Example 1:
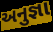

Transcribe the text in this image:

અનુજ્ઞા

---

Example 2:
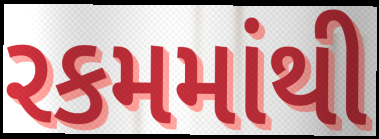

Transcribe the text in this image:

રકમમાંથી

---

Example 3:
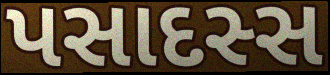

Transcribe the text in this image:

પસાદસ્સ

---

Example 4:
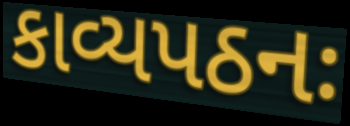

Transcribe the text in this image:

કાવ્યપઠનઃ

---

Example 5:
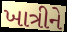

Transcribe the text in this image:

ખાત્રીને